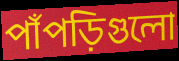
পাঁপড়িগুলো